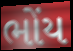
ભોંય